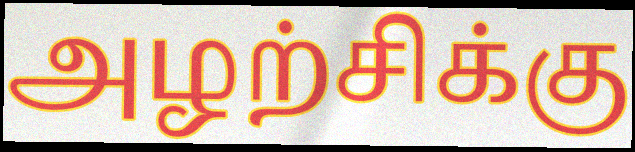
அழற்சிக்கு